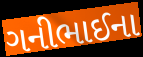
ગનીભાઈના